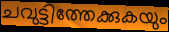
ചവുട്ടിത്തേക്കുകയും